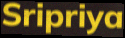
Sripriya